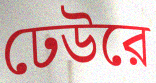
ঢেউরে